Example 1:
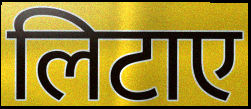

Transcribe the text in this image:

लिटाए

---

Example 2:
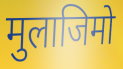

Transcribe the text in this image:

मुलाजिमो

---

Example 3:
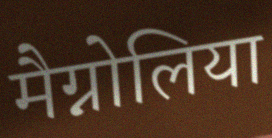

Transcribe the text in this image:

मैग्नोलिया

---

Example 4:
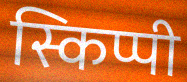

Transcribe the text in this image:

स्किप्पी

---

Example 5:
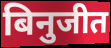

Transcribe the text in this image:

बिनुजीत